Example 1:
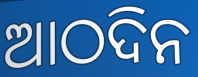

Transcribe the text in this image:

ଆଠଦିନ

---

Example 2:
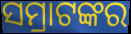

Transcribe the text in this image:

ସମ୍ରାଟଙ୍କର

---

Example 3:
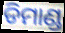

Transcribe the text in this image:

ଡିମାଣ୍ଡ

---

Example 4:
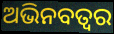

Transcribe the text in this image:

ଅଭିନବତ୍ୱର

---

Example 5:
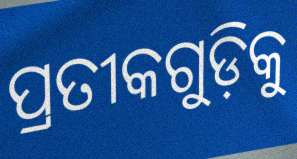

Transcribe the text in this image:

ପ୍ରତୀକଗୁଡ଼ିକୁ